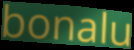
bonalu